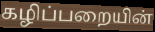
கழிப்பறையின்